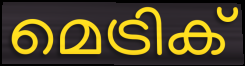
മെട്രിക്